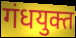
गंधयुक्‍त